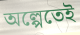
অল্পেতেই